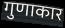
गुणाकार